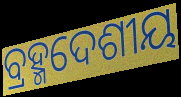
ବ୍ରହ୍ମଦେଶୀୟ